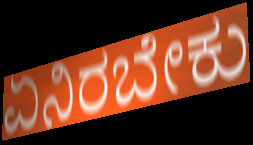
ಏನಿರಬೇಕು